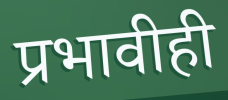
प्रभावीही